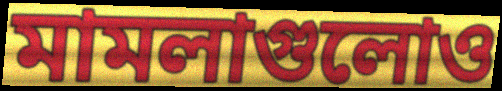
মামলাগুলোও